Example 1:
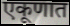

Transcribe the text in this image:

एकूणात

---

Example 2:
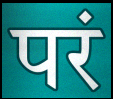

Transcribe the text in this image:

परं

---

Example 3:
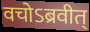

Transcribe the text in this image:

वचोऽब्रवीत्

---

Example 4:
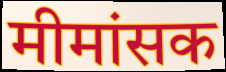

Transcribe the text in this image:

मीमांसक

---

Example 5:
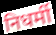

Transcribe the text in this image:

निधर्मी